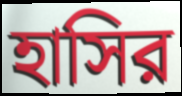
হাসির